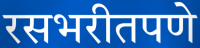
रसभरीतपणे